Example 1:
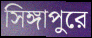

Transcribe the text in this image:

সিঙ্গাপুরে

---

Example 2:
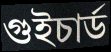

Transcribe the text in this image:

গুইচার্ড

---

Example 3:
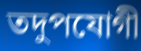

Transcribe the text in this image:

তদুপযোগী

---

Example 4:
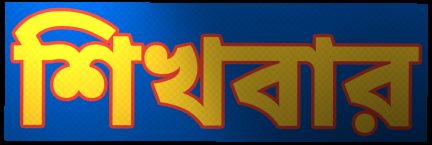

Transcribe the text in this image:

শিখবার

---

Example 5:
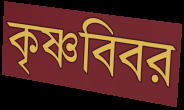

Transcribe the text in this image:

কৃষ্ণবিবর